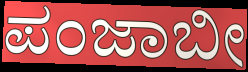
ಪಂಜಾಬೀ